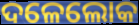
ଦଳେଲୋକ